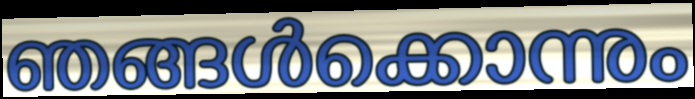
ഞങ്ങൾക്കൊന്നും